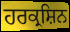
ਹਰਕ੍ਰਸ਼ਿਨ